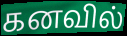
கனவில்